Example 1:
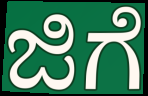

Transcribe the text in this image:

ಜಿಗೆ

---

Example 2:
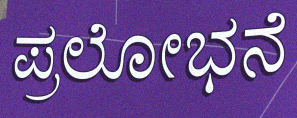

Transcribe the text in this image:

ಪ್ರಲೋಭನೆ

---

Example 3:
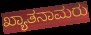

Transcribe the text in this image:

ಖ್ಯಾತನಾಮರು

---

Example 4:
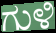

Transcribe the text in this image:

ಗುಳಿ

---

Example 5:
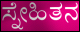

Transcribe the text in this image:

ಸ್ನೇಹಿತನ